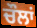
ਚੌਲਾਂ